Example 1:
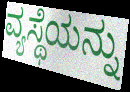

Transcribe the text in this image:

ವ್ಯಸ್ಥೆಯನ್ನು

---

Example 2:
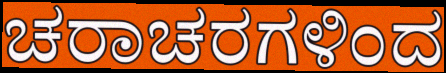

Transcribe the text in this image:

ಚರಾಚರಗಳಿಂದ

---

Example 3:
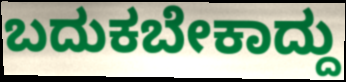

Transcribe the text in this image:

ಬದುಕಬೇಕಾದ್ದು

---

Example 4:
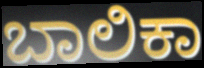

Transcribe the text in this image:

ಬಾಲಿಕಾ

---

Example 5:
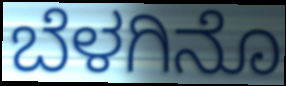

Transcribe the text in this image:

ಬೆಳಗಿನೊ